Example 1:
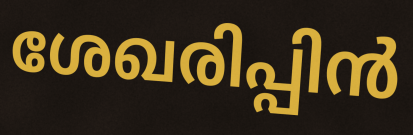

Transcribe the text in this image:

ശേഖരിപ്പിൻ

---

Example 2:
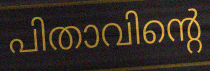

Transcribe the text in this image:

പിതാവിന്റെ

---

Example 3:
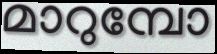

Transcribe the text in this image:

മാറുമ്പോ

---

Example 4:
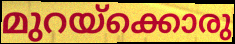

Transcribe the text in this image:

മുറയ്ക്കൊരു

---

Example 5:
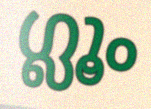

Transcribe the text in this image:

ഗ്ലൂം